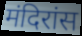
मंदिरांस